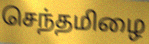
செந்தமிழை